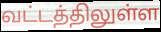
வட்டத்திலுள்ள